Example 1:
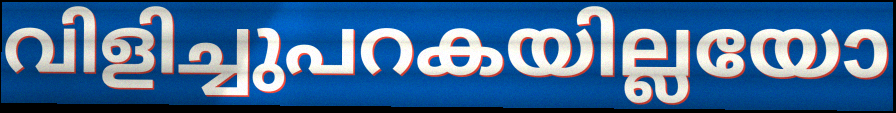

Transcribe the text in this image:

വിളിച്ചുപറകയില്ലയോ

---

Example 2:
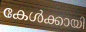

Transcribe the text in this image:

കേൾക്കായി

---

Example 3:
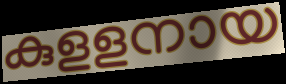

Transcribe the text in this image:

കുളളനായ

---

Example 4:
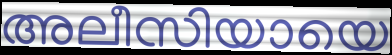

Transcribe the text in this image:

അലീസിയായെ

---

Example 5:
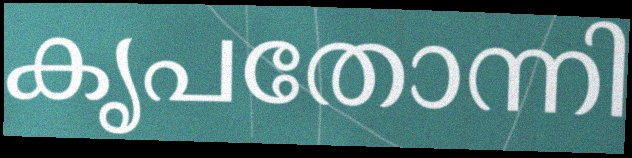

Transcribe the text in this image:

കൃപതോന്നി